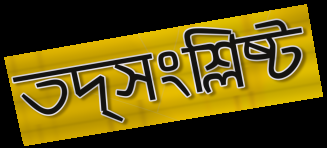
তদ্‌সংশ্লিষ্ট